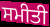
ਸਮੀਤੀ